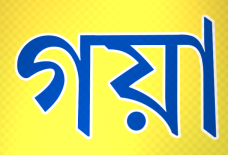
গয়া